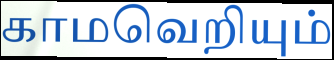
காமவெறியும்